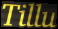
Tillu